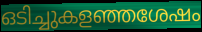
ഒടിച്ചുകളഞ്ഞശേഷം